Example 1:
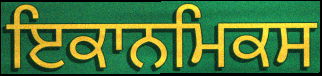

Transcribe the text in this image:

ਇਕਾਨਮਿਕਸ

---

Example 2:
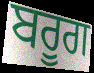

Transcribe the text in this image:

ਬਰੂਗ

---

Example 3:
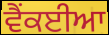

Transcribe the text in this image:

ਵੈਂਕਈਆ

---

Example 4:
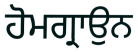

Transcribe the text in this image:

ਹੋਮਗ੍ਰਾਉਨ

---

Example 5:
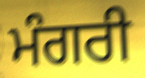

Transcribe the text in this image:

ਮੰਗਰੀ